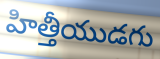
హిత్తీయుడగు